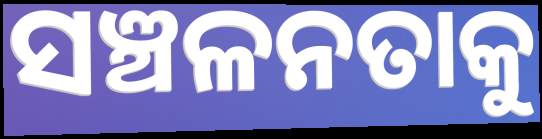
ସଞ୍ଚଳନତାକୁ